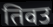
तिवउ